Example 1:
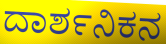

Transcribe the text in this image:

ದಾರ್ಶನಿಕನ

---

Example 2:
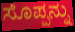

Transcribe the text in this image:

ಸೊಪ್ಪನ್ನು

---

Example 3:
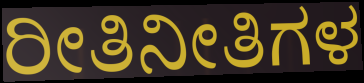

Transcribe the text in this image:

ರೀತಿನೀತಿಗಳ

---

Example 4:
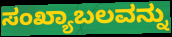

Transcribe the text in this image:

ಸಂಖ್ಯಾಬಲವನ್ನು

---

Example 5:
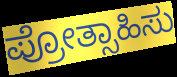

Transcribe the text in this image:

ಪ್ರೋತ್ಸಾಹಿಸು